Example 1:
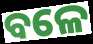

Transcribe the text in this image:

ବଳେ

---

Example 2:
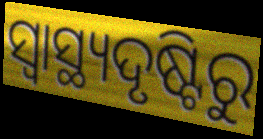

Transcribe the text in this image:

ସ୍ୱାସ୍ଥ୍ୟଦୃଷ୍ଟିରୁ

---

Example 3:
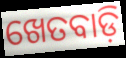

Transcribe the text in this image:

ଖେତବାଡ଼ି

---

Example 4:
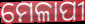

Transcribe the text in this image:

ମେଳାପୀ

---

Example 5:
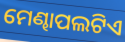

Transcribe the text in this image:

ମେଣ୍ଢାପଲଟିଏ